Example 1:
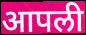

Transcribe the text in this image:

आपली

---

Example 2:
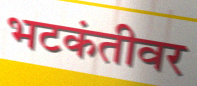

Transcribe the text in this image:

भटकंतीवर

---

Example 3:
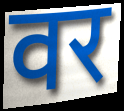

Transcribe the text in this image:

वर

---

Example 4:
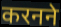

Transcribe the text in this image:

करनने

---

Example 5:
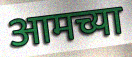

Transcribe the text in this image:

आमच्या